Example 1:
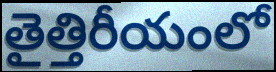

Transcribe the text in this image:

తైత్తిరీయంలో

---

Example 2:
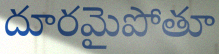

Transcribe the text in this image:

దూరమైపోతూ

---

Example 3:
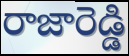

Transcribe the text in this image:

రాజారెడ్డి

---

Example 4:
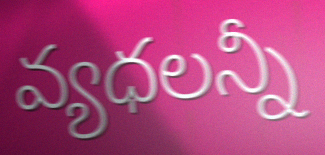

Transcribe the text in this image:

వ్యధలన్నీ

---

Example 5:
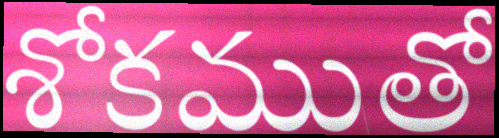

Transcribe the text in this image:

శోకముతో